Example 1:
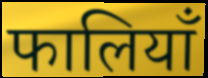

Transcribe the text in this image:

फालियाँ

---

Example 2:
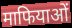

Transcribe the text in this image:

माफियाओं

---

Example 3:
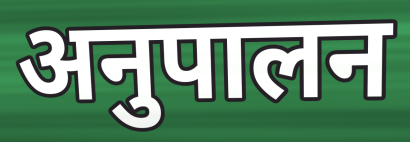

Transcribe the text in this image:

अनुपालन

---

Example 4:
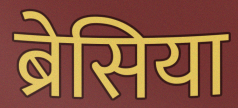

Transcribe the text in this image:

ब्रेसिया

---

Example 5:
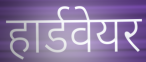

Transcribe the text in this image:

हार्डवेयर